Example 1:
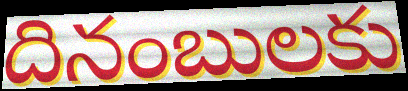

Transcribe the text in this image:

దినంబులకు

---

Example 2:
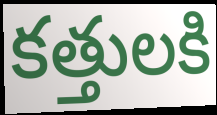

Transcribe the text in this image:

కత్తులకి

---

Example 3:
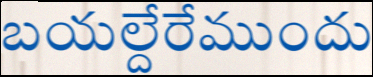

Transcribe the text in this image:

బయల్దేరేముందు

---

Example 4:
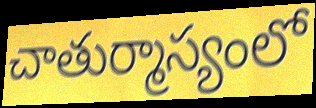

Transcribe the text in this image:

చాతుర్మాస్యంలో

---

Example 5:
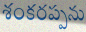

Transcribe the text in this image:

శంకరప్పను